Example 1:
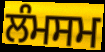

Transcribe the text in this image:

ਲੰਮਸਮ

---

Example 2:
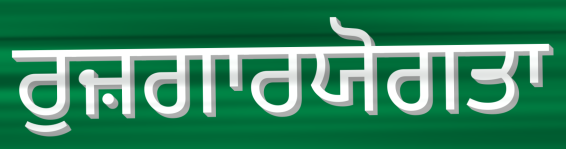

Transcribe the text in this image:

ਰੁਜ਼ਗਾਰਯੋਗਤਾ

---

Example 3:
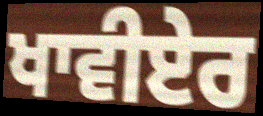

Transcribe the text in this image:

ਖਾਵੀਏਰ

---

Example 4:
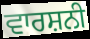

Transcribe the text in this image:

ਵਾਰਸ਼ਨੀ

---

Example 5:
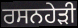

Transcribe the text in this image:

ਰਸਨਹੇੜੀ